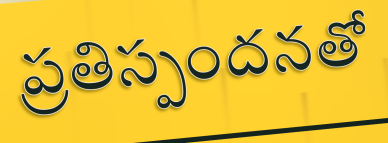
ప్రతిస్పందనతో